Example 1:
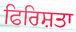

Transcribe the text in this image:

ਫਿਰਿਸ਼ਤਾ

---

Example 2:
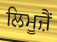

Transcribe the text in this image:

ਲਿਮੂਜ਼ੈਂ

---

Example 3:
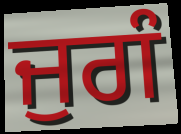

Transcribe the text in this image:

ਜੁਗੰ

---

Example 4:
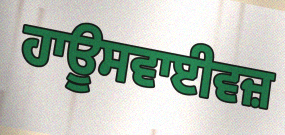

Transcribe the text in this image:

ਹਾਊਸਵਾਈਵਜ਼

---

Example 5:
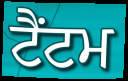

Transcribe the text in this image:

ਟੈਂਟਮ